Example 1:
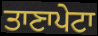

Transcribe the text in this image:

ਤਾਣਾਪੇਟਾ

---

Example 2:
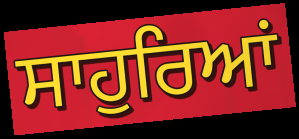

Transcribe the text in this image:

ਸਾਹੁਰਿਆਂ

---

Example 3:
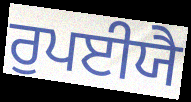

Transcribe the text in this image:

ਰੁਪਈਯੈ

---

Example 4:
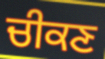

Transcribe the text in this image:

ਚੀਕਣ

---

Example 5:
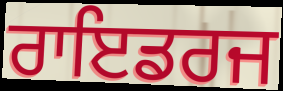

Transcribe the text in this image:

ਰਾਇਡਰਜ